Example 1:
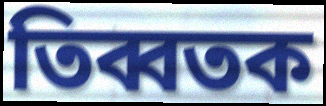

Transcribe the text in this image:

তিব্বতক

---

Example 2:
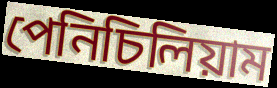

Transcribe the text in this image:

পেনিচিলিয়াম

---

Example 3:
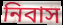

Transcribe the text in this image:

নিবাস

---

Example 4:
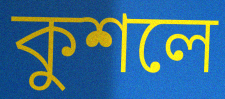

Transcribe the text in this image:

কুশলে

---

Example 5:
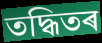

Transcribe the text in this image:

তদ্ধিতৰ